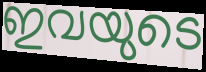
ഇവയുടെ